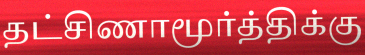
தட்சிணாமூர்த்திக்கு